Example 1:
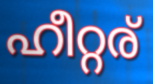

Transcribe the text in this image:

ഹീറ്റര്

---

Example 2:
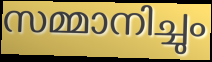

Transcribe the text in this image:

സമ്മാനിച്ചും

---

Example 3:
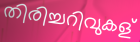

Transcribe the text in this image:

തിരിച്ചറിവുകള്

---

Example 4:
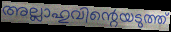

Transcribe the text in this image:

അല്ലാഹുവിന്റെയടുത്ത്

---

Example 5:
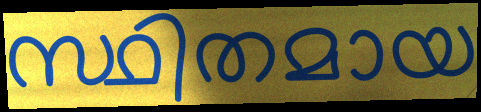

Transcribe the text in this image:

സ്ഥിതമായ